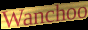
Wanchoo